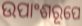
ଉପାଂଶରୂପେ